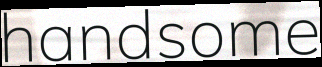
handsome